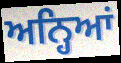
ਅਨ੍ਹਿਆਂ